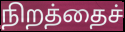
நிறத்தைச்